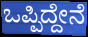
ಒಪ್ಪಿದ್ದೇನೆ